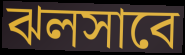
ঝলসাবে